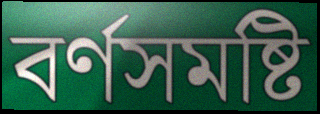
বর্ণসমষ্টি